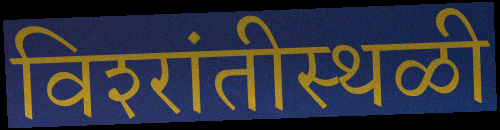
विश्रांतीस्थळी